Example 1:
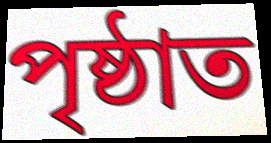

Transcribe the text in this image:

পৃষ্ঠাত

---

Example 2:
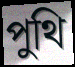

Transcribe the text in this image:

পুথি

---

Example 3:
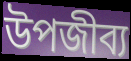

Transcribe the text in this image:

উপজীব্য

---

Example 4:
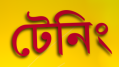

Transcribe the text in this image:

টেনিং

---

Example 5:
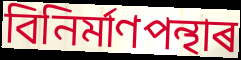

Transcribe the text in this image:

বিনিৰ্মাণপন্থাৰ